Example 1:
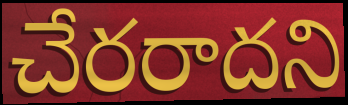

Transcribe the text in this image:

చేరరాదని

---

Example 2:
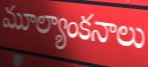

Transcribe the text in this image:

మూల్యాంకనాలు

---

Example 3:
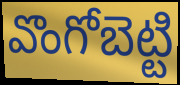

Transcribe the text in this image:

వొంగోబెట్టి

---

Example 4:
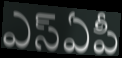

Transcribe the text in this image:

ఎస్ఏపీ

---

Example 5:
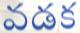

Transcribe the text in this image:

వడక